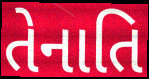
તેનાતિ